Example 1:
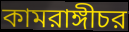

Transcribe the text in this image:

কামরাঙ্গীচর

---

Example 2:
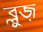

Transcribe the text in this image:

ব্লুজ়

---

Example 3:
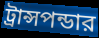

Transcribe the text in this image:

ট্রান্সপন্ডার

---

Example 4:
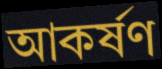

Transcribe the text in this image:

আকর্ষণ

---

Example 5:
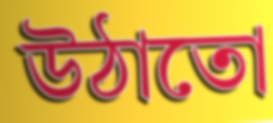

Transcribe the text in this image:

উঠাতো